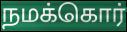
நமக்கொர்